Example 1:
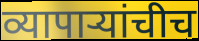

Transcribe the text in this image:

व्यापाऱ्यांचीच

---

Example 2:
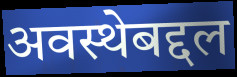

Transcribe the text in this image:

अवस्थेबद्दल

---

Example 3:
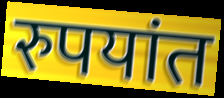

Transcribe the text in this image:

रुपयांत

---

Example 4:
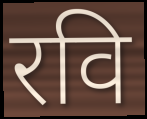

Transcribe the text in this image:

रवि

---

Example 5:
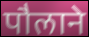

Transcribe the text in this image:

पौलाने